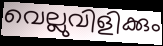
വെല്ലുവിളിക്കും